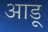
आडू